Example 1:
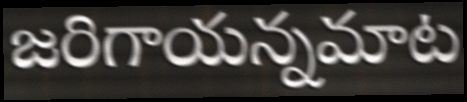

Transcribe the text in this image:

జరిగాయన్నమాట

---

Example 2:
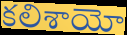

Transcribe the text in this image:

కలిశాయో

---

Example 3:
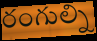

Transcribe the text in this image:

రంగుల్ని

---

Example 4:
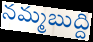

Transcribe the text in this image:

నమ్మబుద్ది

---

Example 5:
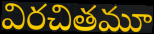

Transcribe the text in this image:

విరచితమూ